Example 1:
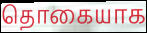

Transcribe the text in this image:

தொகையாக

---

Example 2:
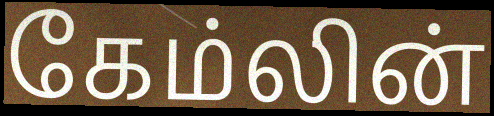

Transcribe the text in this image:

கேம்லின்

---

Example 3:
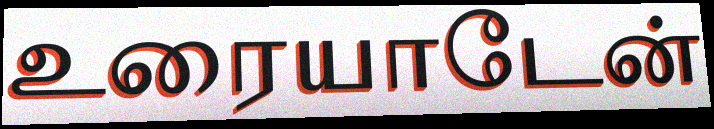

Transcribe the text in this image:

உரையாடேன்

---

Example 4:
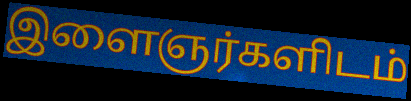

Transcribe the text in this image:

இளைஞர்களிடம்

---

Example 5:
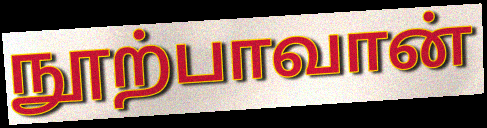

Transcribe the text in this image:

நூற்பாவான்